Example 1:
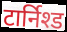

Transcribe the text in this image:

टार्निश्ड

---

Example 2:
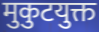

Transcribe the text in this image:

मुकुटयुक्त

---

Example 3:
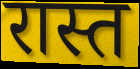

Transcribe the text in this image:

रास्त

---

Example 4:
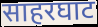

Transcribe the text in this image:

साहरघाट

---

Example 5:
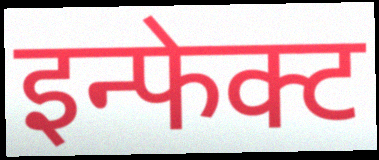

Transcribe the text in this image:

इन्फेक्ट